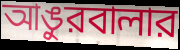
আঙুরবালার